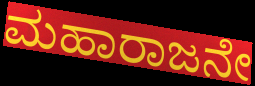
ಮಹಾರಾಜನೇ